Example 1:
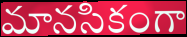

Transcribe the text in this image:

మానసికంగా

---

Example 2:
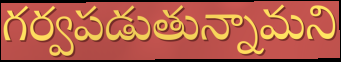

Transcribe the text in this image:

గర్వపడుతున్నామని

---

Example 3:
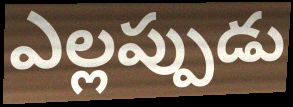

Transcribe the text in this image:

ఎల్లప్పుడు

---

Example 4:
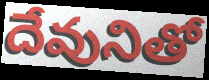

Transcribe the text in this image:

దేవునితో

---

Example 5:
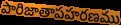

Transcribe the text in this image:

పారిజాతాపహరణము